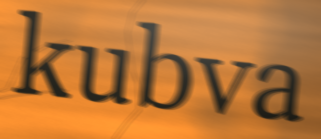
kubva